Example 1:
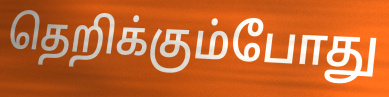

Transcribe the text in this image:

தெறிக்கும்போது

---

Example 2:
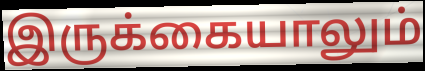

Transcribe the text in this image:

இருக்கையாலும்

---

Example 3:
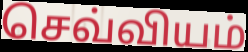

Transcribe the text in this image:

செவ்வியம்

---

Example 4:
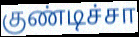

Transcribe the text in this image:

குண்டிச்சா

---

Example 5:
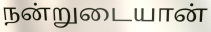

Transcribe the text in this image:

நன்றுடையான்